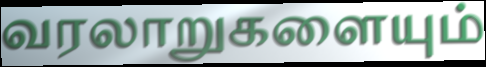
வரலாறுகளையும்